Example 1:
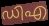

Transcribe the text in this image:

ഡിഎ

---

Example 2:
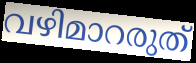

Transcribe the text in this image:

വഴിമാറരുത്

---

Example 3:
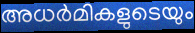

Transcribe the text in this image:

അധർമികളുടെയും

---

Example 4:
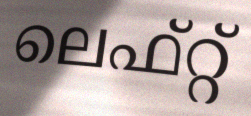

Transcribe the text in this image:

ലെഫ്റ്റ്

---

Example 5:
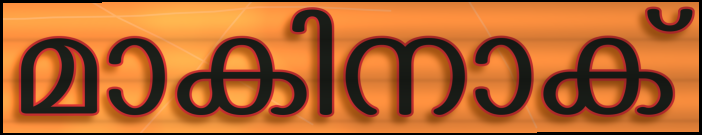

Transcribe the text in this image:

മാകിനാക്